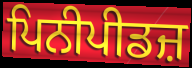
ਪਿਨੀਪੀਡਜ਼